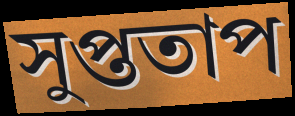
সুপ্ততাপ